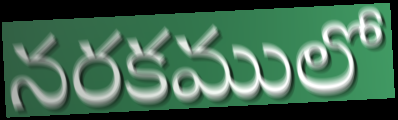
నరకములో